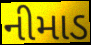
નીમાડ